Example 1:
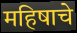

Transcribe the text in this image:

महिषाचे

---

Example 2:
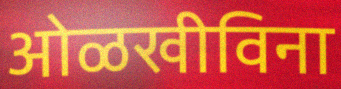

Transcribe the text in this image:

ओळखीविना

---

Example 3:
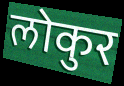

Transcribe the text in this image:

लोकुर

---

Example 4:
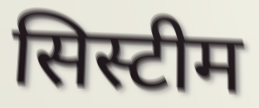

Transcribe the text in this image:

सिस्टीम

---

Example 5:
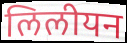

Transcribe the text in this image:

लिलीयन